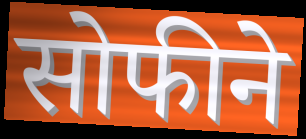
सोफीने